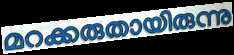
മറക്കരുതായിരുന്നു